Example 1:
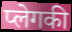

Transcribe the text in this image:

प्लेगकी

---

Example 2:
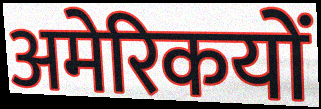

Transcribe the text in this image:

अमेरिकयों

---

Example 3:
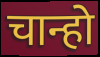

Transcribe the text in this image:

चान्हो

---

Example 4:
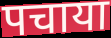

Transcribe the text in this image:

पचाया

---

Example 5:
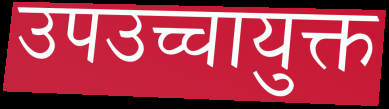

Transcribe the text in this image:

उपउच्चायुक्त